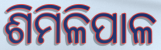
ଶିମିଳିପାଳ